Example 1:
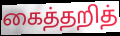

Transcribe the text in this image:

கைத்தறித்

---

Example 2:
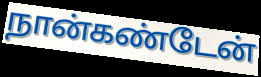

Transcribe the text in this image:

நான்கண்டேன்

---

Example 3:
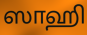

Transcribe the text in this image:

ஸாஹி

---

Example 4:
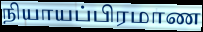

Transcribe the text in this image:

நியாயப்பிரமாண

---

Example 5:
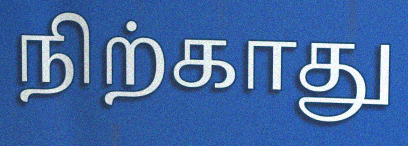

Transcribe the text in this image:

நிற்காது